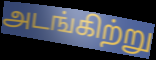
அடங்கிற்று